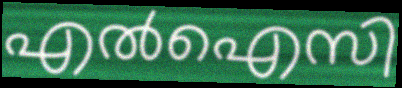
എൽഐസി